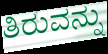
ತಿರುವನ್ನು